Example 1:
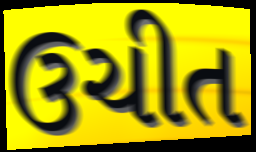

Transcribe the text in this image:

ઉચીત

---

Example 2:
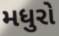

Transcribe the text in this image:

મધુરો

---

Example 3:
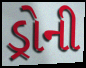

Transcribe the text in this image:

ડ્રોની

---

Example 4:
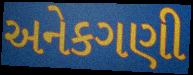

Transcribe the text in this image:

અનેકગણી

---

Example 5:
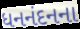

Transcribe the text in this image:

ધનનંદનના